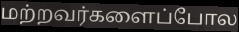
மற்றவர்களைப்போல